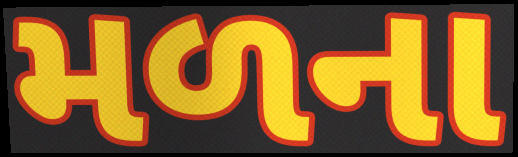
મળના